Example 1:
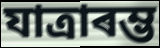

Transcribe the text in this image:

যাত্ৰাৰম্ভ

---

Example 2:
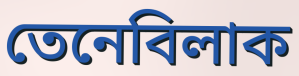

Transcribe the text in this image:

তেনেবিলাক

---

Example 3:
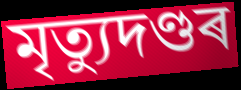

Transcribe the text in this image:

মৃত্যুদণ্ডৰ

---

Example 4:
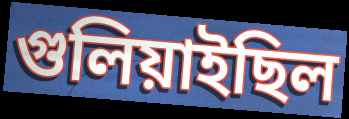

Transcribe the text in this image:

গুলিয়াইছিল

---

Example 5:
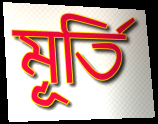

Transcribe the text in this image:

মূৰ্তি